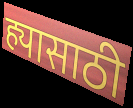
ह्यासाठी